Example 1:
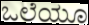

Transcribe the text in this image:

ಒಲೆಯೂ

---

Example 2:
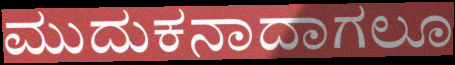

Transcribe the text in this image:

ಮುದುಕನಾದಾಗಲೂ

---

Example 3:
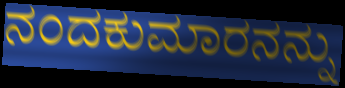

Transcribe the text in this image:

ನಂದಕುಮಾರನನ್ನು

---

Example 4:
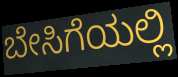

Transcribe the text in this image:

ಬೇಸಿಗೆಯಲ್ಲಿ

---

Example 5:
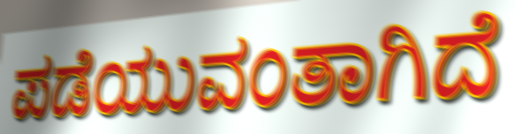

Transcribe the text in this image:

ಪಡೆಯುವಂತಾಗಿದೆ